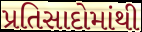
પ્રતિસાદોમાંથી